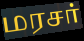
மரசர்